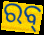
ରବ୍